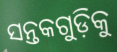
ସନ୍ତକଗୁଡ଼ିକୁ